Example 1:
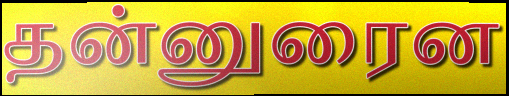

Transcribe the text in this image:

தன்னுரைன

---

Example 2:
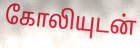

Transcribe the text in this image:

கோலியுடன்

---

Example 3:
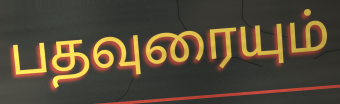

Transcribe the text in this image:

பதவுரையும்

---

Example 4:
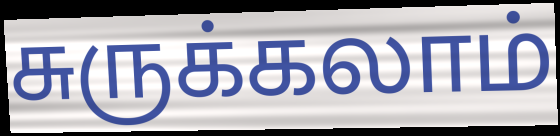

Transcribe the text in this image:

சுருக்கலாம்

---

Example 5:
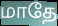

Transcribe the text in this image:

மாதே